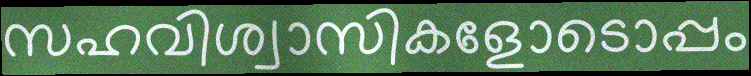
സഹവിശ്വാസികളോടൊപ്പം